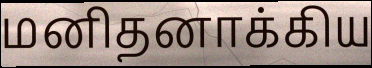
மனிதனாக்கிய